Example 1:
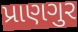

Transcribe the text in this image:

પ્રાણગુર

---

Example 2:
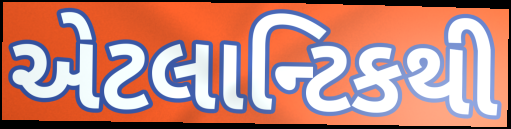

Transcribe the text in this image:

એટલાન્ટિકથી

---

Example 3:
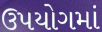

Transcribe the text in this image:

ઉપયોગમાં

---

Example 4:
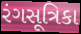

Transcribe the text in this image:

રંગસૂત્રિકા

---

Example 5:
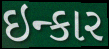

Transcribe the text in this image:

ઇન્કાર